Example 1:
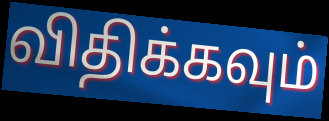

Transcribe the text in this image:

விதிக்கவும்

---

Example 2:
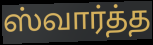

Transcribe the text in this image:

ஸ்வார்த்த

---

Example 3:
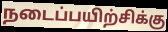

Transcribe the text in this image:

நடைப்பயிற்சிக்கு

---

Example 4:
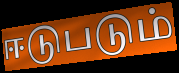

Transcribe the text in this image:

ஈடுபடும்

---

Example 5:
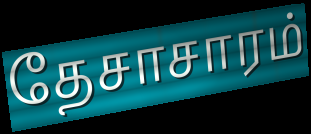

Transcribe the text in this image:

தேசாசாரம்